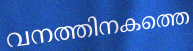
വനത്തിനകത്തെ